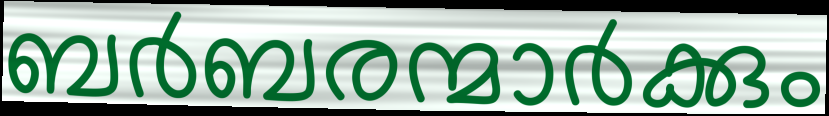
ബർബരന്മാർക്കും